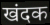
खंदक